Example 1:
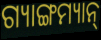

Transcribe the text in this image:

ଗ୍ୟାଙ୍ଗମ୍ୟାନ୍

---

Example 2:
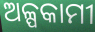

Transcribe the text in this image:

ଅଳ୍ପକାମୀ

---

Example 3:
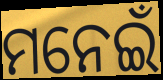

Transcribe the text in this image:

ମନେଇଁ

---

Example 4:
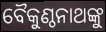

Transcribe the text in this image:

ବୈକୁଣ୍ଠନାଥଙ୍କୁ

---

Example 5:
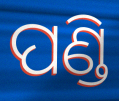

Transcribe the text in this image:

ପଣ୍ଡି